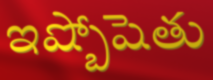
ఇష్బోషెతు